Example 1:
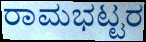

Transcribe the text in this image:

ರಾಮಭಟ್ಟರ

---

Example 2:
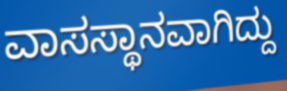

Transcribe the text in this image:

ವಾಸಸ್ಥಾನವಾಗಿದ್ದು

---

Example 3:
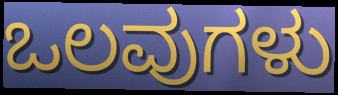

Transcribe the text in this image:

ಒಲವುಗಳು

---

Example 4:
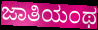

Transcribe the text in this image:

ಜಾತಿಯಂಥ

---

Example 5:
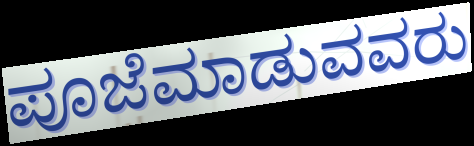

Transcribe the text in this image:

ಪೂಜೆಮಾಡುವವರು